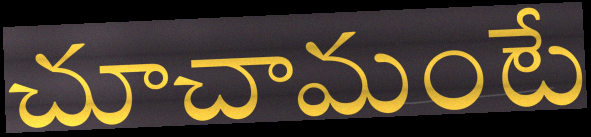
చూచామంటే